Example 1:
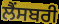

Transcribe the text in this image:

ਲੈਂਸਬਰੀ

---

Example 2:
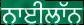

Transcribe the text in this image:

ਨਾਈਲਾੱਨ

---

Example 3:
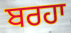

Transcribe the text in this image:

ਬਰਹਾ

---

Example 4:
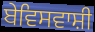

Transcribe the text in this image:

ਬੇਵਿਸਵਾਸ਼ੀ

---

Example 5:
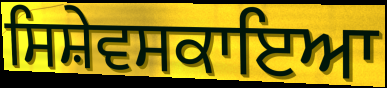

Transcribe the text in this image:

ਸਿਸ਼ੇਵਸਕਾਇਆ